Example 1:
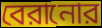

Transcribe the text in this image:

বেরানোর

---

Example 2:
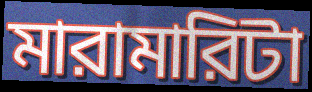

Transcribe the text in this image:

মারামারিটা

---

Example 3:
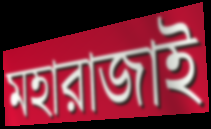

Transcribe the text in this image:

মহারাজাই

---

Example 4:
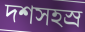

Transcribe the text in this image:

দশসহস্র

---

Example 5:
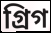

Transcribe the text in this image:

গ্রিগ